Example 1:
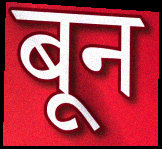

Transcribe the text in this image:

बून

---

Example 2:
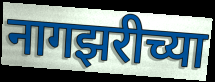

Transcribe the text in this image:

नागझरीच्या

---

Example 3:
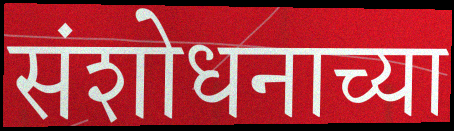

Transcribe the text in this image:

संशोधनाच्या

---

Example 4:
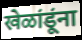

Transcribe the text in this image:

खेळांडूंना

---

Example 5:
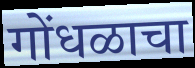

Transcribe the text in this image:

गोंधळाचा